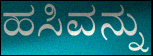
ಹಸಿವನ್ನು